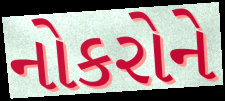
નોકરોને